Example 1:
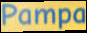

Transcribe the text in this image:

Pampa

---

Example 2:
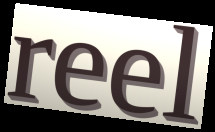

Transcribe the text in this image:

reel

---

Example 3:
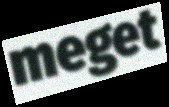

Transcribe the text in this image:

meget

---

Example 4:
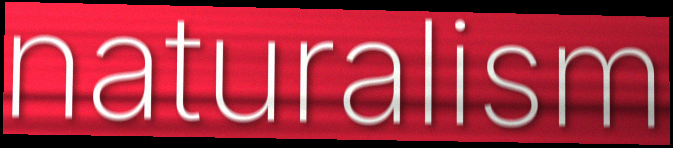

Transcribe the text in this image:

naturalism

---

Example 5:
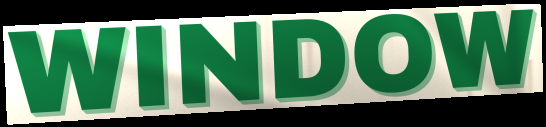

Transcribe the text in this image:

WINDOW